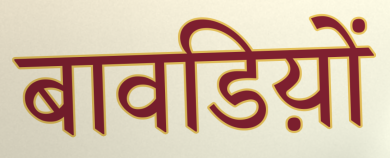
बावडिय़ों